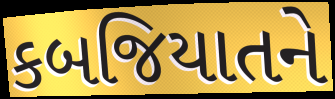
કબજિયાતને